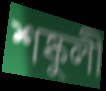
শষ্কুলী